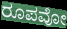
ರೂಪವೋ